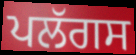
ਪਲੱਗਸ